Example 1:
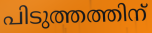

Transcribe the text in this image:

പിടുത്തത്തിന്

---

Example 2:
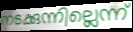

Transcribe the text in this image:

നടക്കുന്നില്ലെന്ന്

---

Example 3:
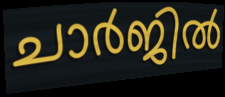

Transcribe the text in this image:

ചാർജിൽ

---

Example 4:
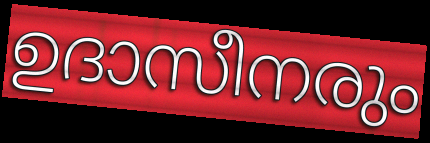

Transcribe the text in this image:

ഉദാസീനരും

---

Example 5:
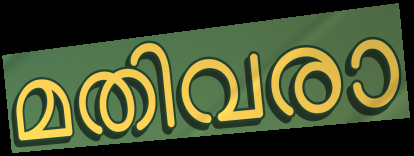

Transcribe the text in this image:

മതിവരാ